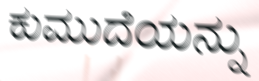
ಕುಮುದೆಯನ್ನು